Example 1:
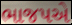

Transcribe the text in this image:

ભાજપએ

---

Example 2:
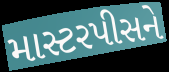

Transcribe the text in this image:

માસ્ટરપીસને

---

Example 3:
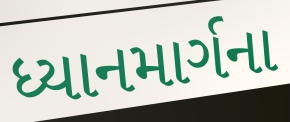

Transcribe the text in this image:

ધ્યાનમાર્ગના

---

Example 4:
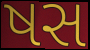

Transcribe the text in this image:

ષસ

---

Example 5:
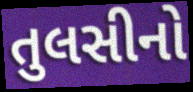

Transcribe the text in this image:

તુલસીનો